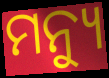
ମନ୍ୟୁ